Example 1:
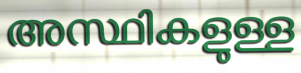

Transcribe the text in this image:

അസ്ഥികളുള്ള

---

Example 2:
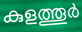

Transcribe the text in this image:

കുളത്തൂർ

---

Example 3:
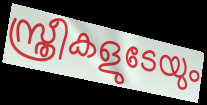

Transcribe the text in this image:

സ്ത്രീകളുടേയും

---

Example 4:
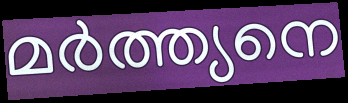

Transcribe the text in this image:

മർത്ത്യനെ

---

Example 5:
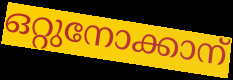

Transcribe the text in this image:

ഒറ്റുനോക്കാന്